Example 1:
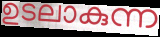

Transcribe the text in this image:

ഉടലാകുന്ന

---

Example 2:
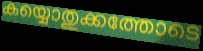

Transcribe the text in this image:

കയ്യൊതുക്കത്തോടെ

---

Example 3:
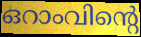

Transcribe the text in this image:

ഒറാംവിന്റെ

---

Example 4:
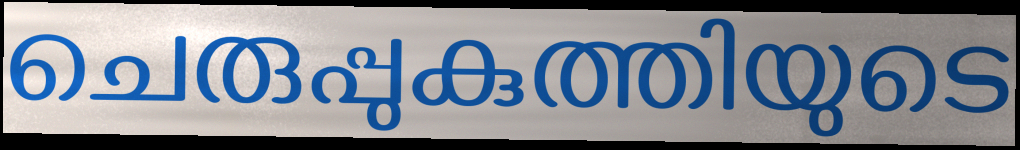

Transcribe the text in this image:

ചെരുപ്പുകുത്തിയുടെ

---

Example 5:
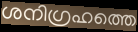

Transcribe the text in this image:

ശനിഗ്രഹത്തെ